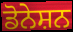
ਡੋਨੇਸ਼ਨ